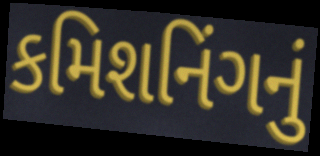
કમિશનિંગનું